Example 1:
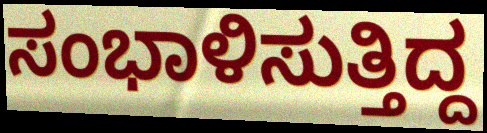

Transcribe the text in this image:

ಸಂಭಾಳಿಸುತ್ತಿದ್ದ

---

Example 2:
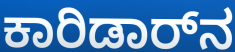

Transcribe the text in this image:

ಕಾರಿಡಾರ್‌ನ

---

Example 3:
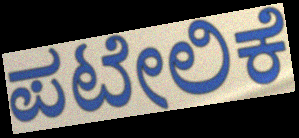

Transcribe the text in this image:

ಪಟೇಲಿಕೆ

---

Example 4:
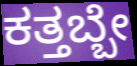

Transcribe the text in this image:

ಕತ್ತಬ್ಬೇ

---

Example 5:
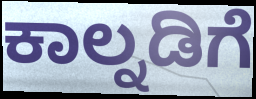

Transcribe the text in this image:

ಕಾಲ್ನಡಿಗೆ